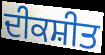
ਦੀਕਸ਼ੀਤ